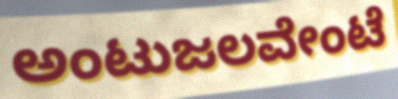
ಅಂಟುಜಲವೇಂಟೆ